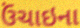
ઉંચાઇના